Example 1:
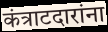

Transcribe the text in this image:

कंत्राटदारांना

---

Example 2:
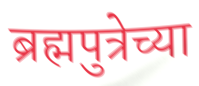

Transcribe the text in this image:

ब्रह्मपुत्रेच्या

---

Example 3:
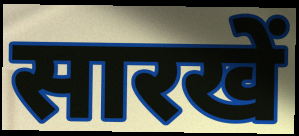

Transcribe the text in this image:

सारखें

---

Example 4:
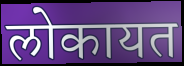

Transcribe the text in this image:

लोकायत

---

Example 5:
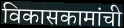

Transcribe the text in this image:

विकासकामांची